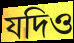
যদিও